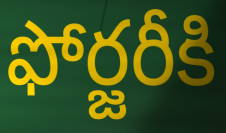
ఫోర్జరీకి